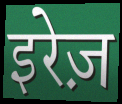
इरेज़